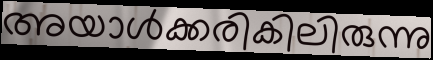
അയാൾക്കരികിലിരുന്നു